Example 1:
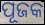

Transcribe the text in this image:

ପୂଜକ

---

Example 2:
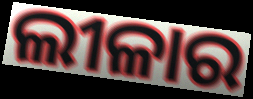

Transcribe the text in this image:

ଲୀଳାର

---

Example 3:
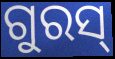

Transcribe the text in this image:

ଗୁରସ୍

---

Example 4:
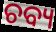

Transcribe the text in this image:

ଚବ୍ୟ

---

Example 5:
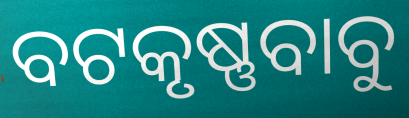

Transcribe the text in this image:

ବଟକୃଷ୍ଣବାବୁ